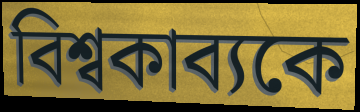
বিশ্বকাব্যকে